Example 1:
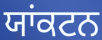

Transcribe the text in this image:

ਯਾਂਕਟਨ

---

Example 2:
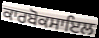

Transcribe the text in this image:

ਕਾਰਬੋਕਸਾਇਲ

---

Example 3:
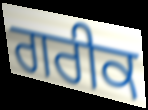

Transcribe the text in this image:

ਗਰੀਕ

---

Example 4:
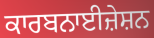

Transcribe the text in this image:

ਕਾਰਬਨਾਈਜ਼ੇਸ਼ਨ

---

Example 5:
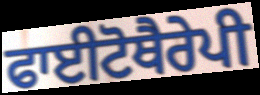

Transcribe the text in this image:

ਫਾਈਟੋਥੈਰੇਪੀ